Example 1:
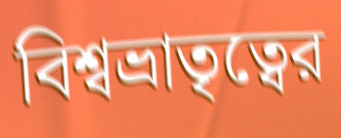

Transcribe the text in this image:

বিশ্বভ্রাতৃত্বের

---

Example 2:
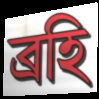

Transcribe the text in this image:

ব্রহি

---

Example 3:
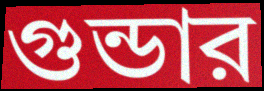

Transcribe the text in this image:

গুন্ডার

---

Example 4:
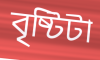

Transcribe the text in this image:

বৃষ্টিটা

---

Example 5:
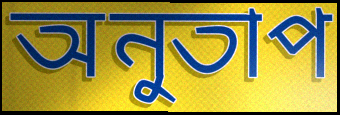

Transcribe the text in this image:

অনুতাপ